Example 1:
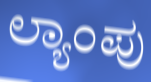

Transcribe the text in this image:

ಲ್ಯಾಂಪು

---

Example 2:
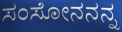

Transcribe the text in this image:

ಸಂಸೋನನನ್ನ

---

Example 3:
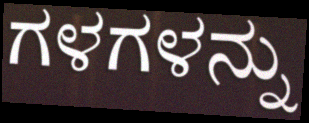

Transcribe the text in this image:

ಗಳಗಳನ್ನು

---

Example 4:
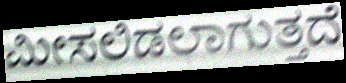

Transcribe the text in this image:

ಮೀಸಲಿಡಲಾಗುತ್ತದೆ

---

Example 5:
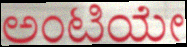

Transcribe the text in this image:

ಅಂಟಿಯೇ